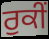
ਰੁਕੀਂ